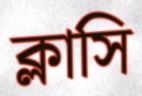
ক্লাসি